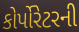
કોર્પોરેટરની